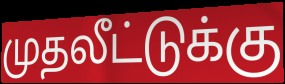
முதலீட்டுக்கு